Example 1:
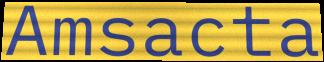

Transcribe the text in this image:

Amsacta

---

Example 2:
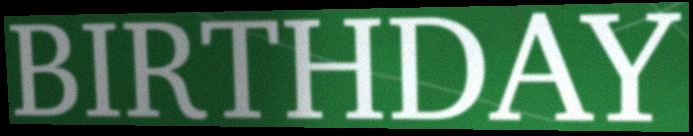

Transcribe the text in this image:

BIRTHDAY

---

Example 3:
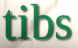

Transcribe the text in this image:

tibs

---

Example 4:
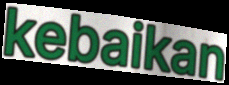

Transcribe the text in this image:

kebaikan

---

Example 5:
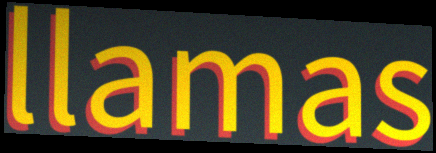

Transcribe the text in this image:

llamas